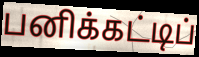
பனிக்கட்டிப்